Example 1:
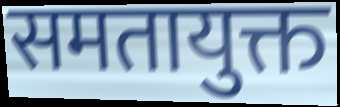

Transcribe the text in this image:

समतायुक्त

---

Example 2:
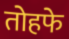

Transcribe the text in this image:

तोहफे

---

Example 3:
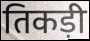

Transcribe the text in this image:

तिकड़ी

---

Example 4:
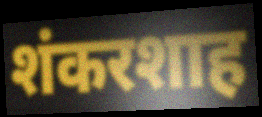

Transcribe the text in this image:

शंकरशाह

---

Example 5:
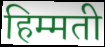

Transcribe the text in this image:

हिम्मती